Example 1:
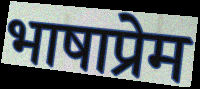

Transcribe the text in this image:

भाषाप्रेम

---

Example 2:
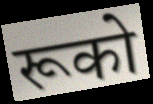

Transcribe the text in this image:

रूको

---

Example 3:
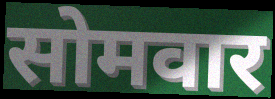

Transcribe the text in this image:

सोमवार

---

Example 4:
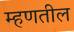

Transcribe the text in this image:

म्हणतील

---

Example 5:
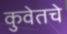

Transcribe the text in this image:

कुवेतचे